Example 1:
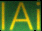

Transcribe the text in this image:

IAi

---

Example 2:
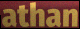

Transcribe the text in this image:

athan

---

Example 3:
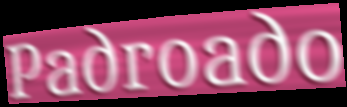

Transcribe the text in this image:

Padroado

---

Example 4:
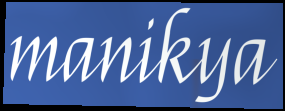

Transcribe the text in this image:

manikya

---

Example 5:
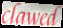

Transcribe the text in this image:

clawed